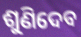
ଶୁଣିଦେବ